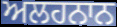
ਅਲਹਨਾਨ